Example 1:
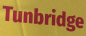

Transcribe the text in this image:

Tunbridge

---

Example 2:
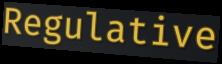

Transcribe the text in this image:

Regulative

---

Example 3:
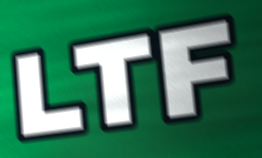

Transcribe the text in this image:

LTF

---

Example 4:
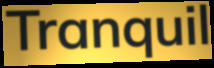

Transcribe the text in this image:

Tranquil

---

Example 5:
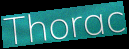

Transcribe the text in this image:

Thorac